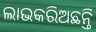
ଲାଭକରିଅଛନ୍ତି